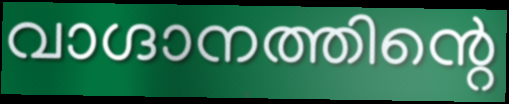
വാഗ്ദാനത്തിന്റെ